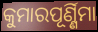
କୁମାରପୂର୍ଣ୍ଣିମା